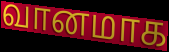
வானமாக